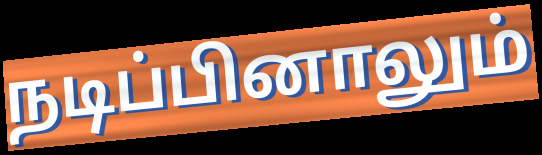
நடிப்பினாலும்